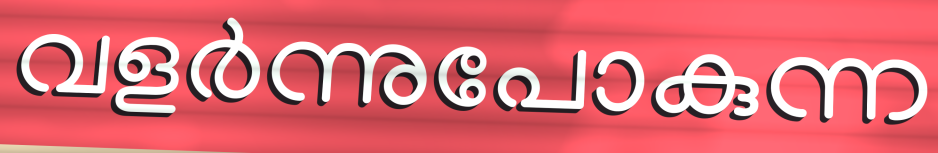
വളർന്നുപോകുന്ന